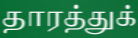
தாரத்துக்